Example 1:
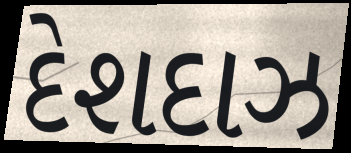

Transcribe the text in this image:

દેશદાઝ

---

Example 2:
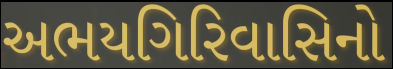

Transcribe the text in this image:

અભયગિરિવાસિનો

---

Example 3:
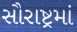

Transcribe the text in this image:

સૌરાષ્ટ્રમાં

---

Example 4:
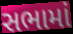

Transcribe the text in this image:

સભામાં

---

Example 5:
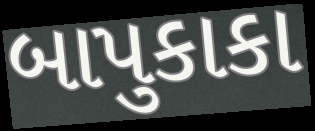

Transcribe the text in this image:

બાપુકાકા